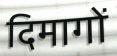
दिमागों